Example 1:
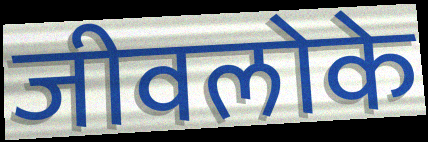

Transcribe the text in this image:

जीवलोके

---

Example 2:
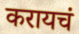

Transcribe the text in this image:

करायचं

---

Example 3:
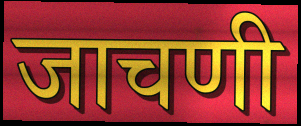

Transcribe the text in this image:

जाचणी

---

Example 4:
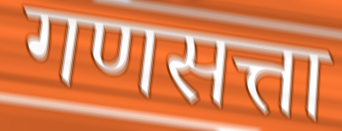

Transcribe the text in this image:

गणसत्ता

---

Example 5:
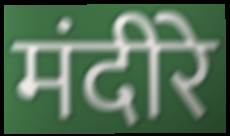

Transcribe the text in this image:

मंदीरे